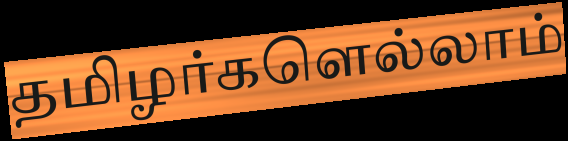
தமிழர்களெல்லாம்